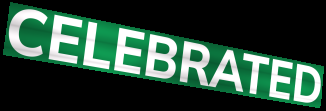
CELEBRATED